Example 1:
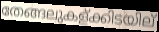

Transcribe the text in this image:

തേങ്ങലുകള്ക്കിടയില്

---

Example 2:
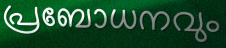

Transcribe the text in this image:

പ്രബോധനവും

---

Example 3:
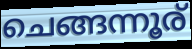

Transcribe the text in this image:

ചെങ്ങന്നൂര്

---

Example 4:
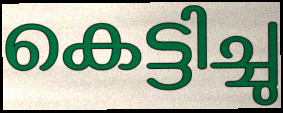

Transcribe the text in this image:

കെട്ടിച്ചു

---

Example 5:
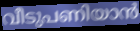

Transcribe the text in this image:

വീടുപണിയാൻ